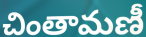
చింతామణీ